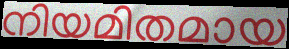
നിയമിതമായ